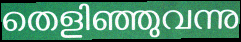
തെളിഞ്ഞുവന്നു